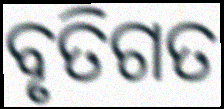
ବୃତିଗତ